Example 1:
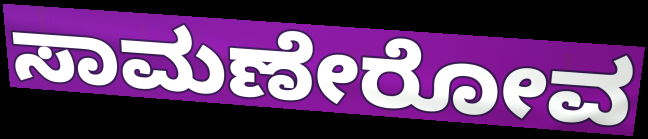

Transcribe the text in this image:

ಸಾಮಣೇರೋವ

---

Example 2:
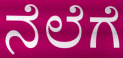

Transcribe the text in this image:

ನೆಲೆಗೆ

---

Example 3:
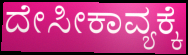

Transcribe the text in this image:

ದೇಸೀಕಾವ್ಯಕ್ಕೆ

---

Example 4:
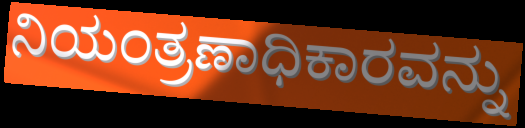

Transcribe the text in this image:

ನಿಯಂತ್ರಣಾಧಿಕಾರವನ್ನು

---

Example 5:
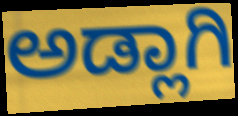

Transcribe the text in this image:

ಅಡ್ಲಾಗಿ